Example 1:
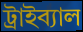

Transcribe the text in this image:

ট্রাইব্যাল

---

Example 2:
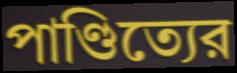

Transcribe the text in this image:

পাণ্ডিত্যের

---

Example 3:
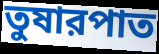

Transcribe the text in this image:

তুষারপাত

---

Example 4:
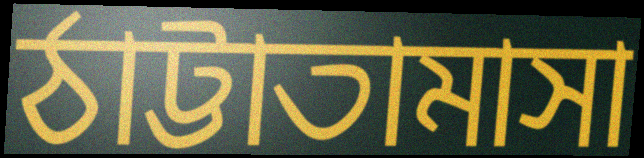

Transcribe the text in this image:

ঠাট্টাতামাসা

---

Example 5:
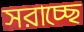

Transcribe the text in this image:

সরাচ্ছে